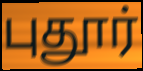
புதூர்